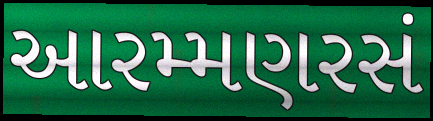
આરમ્મણરસં